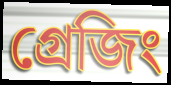
গ্রেজিং